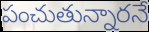
పంచుతున్నారనే